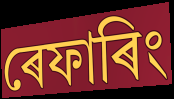
ৰেফাৰিং